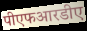
पीएफआरडीए